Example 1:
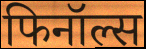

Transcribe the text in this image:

फिनॉल्स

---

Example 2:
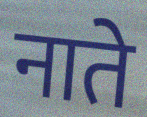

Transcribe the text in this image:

नाते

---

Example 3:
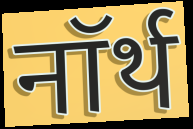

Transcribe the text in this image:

नॉर्थ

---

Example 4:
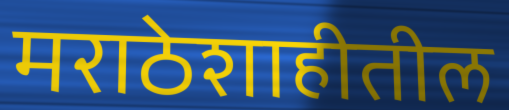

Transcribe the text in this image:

मराठेशाहीतील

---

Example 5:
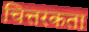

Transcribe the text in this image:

चित्तरकता